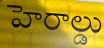
హెరాల్డు